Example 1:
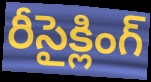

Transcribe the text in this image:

రీసైక్లింగ్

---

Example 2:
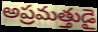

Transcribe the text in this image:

అప్రమత్తుడై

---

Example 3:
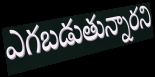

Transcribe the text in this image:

ఎగబడుతున్నారని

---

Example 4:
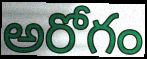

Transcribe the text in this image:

అరోగం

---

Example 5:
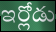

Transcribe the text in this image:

ఇర్లోడు